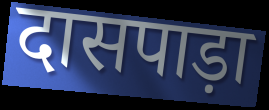
दासपाड़ा